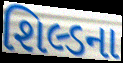
શિલ્ડના